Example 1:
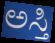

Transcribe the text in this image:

ಅಸ್ತಿ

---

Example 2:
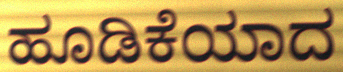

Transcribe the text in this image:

ಹೂಡಿಕೆಯಾದ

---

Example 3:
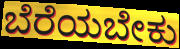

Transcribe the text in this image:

ಬೆರೆಯಬೇಕು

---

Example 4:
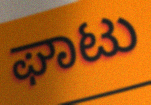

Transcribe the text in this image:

ಘಾಟು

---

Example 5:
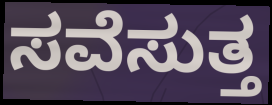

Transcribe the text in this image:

ಸವೆಸುತ್ತ